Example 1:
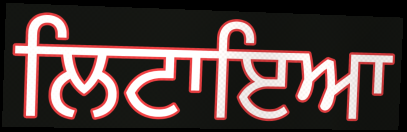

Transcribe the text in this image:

ਲਿਟਾਇਆ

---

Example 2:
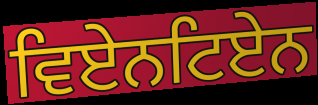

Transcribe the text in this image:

ਵਿਏਨਟਿਏਨ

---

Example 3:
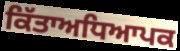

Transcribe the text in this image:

ਕਿੱਤਾਅਧਿਆਪਕ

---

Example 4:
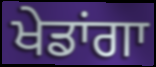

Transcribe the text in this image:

ਖੇਡਾਂਗਾ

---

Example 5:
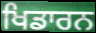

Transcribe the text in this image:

ਖਿਡਾਰਨ